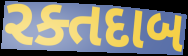
રક્તદાબ